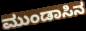
ಮುಂಡಾಸಿನ